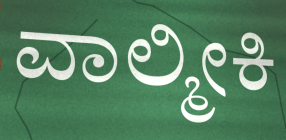
ವಾಲ್ಮೀಕಿ